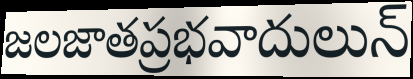
జలజాతప్రభవాదులున్